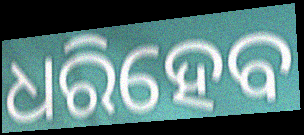
ଧରିହେବ